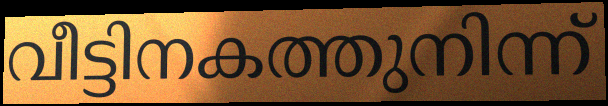
വീട്ടിനകത്തുനിന്ന്